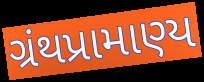
ગ્રંથપ્રામાણ્ય